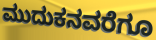
ಮುದುಕನವರೆಗೂ